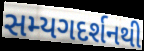
સમ્યગદર્શનથી